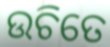
ଉଚିତେ